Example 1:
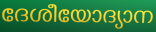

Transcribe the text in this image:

ദേശീയോദ്യാന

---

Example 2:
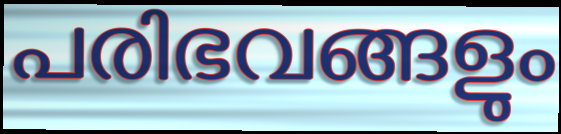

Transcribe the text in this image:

പരിഭവങ്ങളും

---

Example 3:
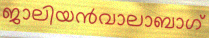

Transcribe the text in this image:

ജാലിയൻവാലാബാഗ്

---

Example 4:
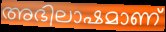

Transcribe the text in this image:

അഭിലാഷമാണ്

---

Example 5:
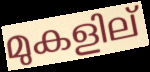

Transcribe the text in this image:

മുകളില്